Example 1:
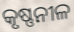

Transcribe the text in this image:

କୃଷ୍ଣନୀଳ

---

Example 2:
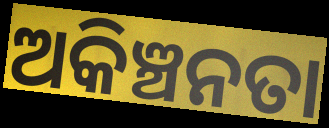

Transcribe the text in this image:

ଅକିଞ୍ଚନତା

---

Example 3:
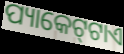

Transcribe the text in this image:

ପ୍ୟାକେଟ୍‌ଟାଏ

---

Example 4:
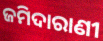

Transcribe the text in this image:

ଜମିଦାରାଣୀ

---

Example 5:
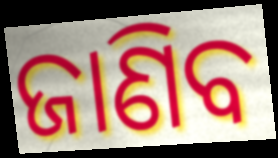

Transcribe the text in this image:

ଜାଣିବ